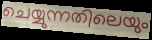
ചെയ്യുന്നതിലെയും